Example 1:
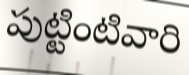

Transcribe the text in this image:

పుట్టింటివారి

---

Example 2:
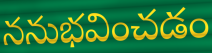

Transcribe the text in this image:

ననుభవించడం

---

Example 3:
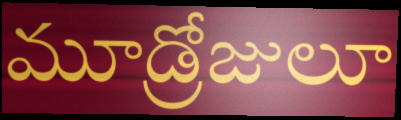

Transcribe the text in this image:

మూడ్రోజులూ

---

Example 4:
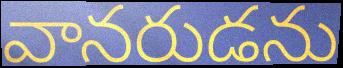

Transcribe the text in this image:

వానరుడను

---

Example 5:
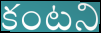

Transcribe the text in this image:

కంటని